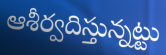
ఆశీర్వదిస్తున్నట్టు